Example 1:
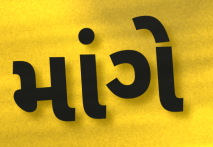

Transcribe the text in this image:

માંગે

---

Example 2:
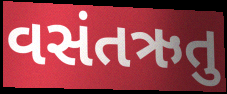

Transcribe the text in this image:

વસંતઋતુ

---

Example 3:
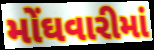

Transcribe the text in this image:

મોંઘવારીમાં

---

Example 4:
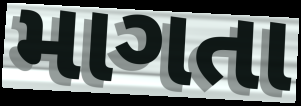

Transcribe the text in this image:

માગતા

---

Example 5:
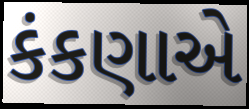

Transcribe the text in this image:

કંકણાએ